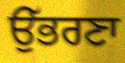
ਉੱਭਰਣਾ